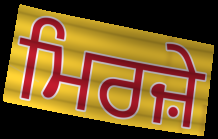
ਮਿਰਜ਼ੇ